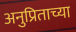
अनुप्रिताच्या